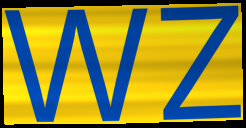
WZ